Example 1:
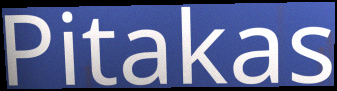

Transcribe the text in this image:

Pitakas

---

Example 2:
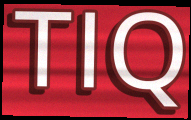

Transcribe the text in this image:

TIQ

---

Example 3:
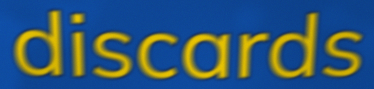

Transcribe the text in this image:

discards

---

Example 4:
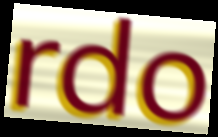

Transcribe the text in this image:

rdo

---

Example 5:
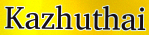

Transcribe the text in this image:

Kazhuthai